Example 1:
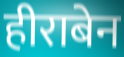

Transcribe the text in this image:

हीराबेन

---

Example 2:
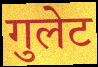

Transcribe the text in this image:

गुलेट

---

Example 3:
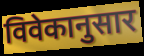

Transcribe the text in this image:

विवेकानुसार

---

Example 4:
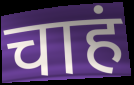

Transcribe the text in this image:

चाहं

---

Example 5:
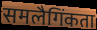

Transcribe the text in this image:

समलैगिंकता